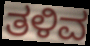
ತಳಿವ